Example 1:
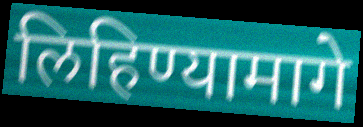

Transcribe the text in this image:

लिहिण्यामागे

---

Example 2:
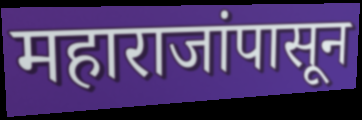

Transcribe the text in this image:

महाराजांपासून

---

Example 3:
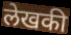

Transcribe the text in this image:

लेखकी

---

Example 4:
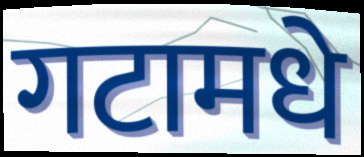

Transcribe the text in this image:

गटामधे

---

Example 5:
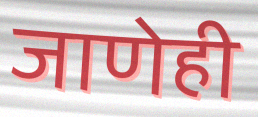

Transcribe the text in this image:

जाणेही